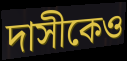
দাসীকেও